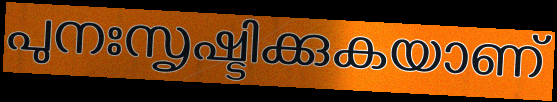
പുനഃസൃഷ്ടിക്കുകയാണ്